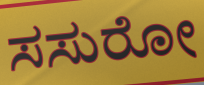
ಸಸುರೋ